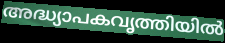
അദ്ധ്യാപകവൃത്തിയിൽ